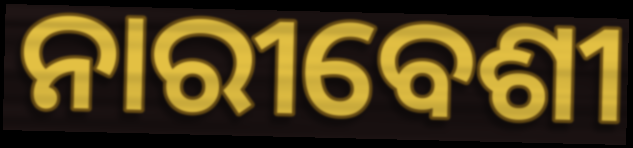
ନାରୀବେଶୀ